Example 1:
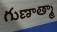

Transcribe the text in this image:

గుణాత్మా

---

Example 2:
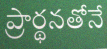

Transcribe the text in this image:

ప్రార్థనతోనే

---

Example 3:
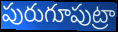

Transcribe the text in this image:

పురుగూపుట్రా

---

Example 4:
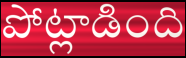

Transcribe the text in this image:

పోట్లాడింది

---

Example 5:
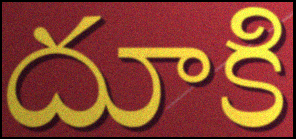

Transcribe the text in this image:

దూకి